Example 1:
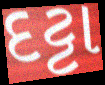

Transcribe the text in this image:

દટ્ટા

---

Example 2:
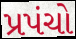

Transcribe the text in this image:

પ્રપંચો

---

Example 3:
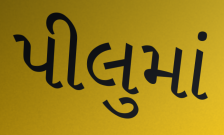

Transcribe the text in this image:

પીલુમાં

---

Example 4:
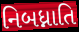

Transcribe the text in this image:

નિબધ્નાતિ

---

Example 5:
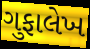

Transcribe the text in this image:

ગુફાલેખ